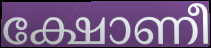
ക്ഷോണീ